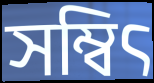
সম্বিৎ